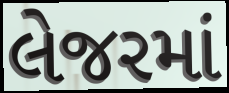
લેજરમાં